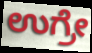
ಉಗ್ರೇ